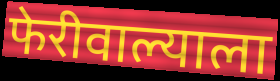
फेरीवाल्याला